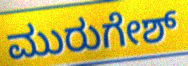
ಮುರುಗೇಶ್